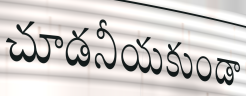
చూడనీయకుండా